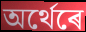
অৰ্থেৰে